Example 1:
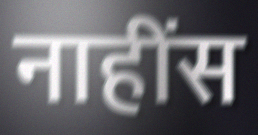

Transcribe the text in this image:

नाहींस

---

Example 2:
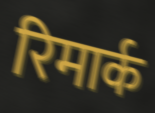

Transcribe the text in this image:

रिमार्क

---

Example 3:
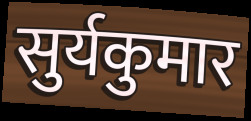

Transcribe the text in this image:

सुर्यकुमार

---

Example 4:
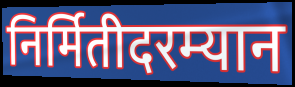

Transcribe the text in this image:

निर्मितीदरम्यान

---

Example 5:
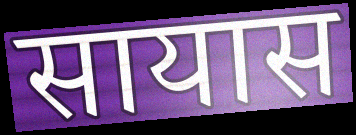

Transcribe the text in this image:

सायास